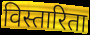
विस्तारिता